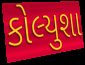
કોલ્યુશા